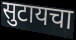
सुटायचा